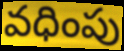
వధింపు